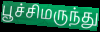
பூச்சிமருந்து